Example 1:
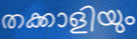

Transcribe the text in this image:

തക്കാളിയും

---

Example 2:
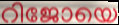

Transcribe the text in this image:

റിജോയെ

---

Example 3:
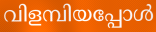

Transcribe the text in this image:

വിളമ്പിയപ്പോൾ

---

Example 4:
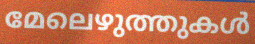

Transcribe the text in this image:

മേലെഴുത്തുകൾ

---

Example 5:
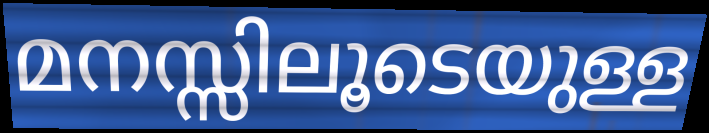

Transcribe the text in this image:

മനസ്സിലൂടെയുള്ള